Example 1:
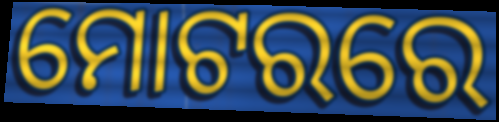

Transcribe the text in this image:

ମୋଟରରେ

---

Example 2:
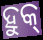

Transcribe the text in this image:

ହୁକ୍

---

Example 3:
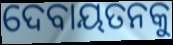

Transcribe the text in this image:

ଦେବାୟତନକୁ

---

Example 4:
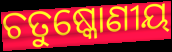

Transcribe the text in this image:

ଚତୁଷ୍କୋଣୀୟ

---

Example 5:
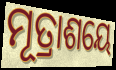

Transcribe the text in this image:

ମୂତ୍ରାଶୟେ